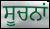
ਸੂਚਨਾਂ